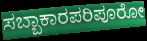
ಸಬ್ಬಾಕಾರಪರಿಪೂರೋ